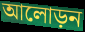
আলোড়ন